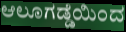
ಆಲೂಗಡ್ಡೆಯಿಂದ